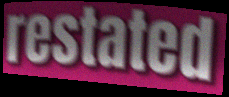
restated